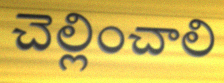
చెల్లించాలి